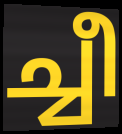
ച്ചീ